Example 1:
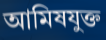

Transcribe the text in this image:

আমিষযুক্ত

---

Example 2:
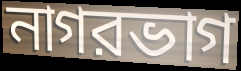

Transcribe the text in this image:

নাগরভাগ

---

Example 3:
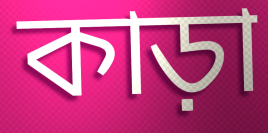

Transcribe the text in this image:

কাড়া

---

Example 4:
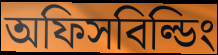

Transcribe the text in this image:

অফিসবিল্ডিং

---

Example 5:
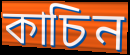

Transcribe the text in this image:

কাচিন